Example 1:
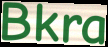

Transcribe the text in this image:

Bkra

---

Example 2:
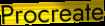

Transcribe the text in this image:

Procreate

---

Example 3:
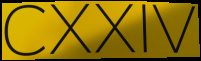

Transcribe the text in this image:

CXXIV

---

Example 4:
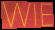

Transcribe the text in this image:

WIE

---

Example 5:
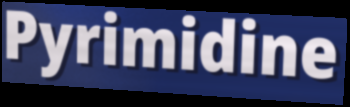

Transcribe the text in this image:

Pyrimidine